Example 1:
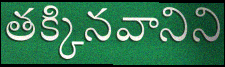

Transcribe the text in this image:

తక్కినవానిని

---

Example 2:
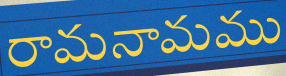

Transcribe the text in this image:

రామనామము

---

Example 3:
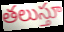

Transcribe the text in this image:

తలుస్తూ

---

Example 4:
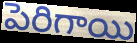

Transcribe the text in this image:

పెరిగాయి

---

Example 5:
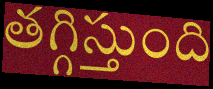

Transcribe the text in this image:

తగ్గిస్తుంది